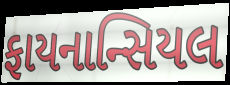
ફાયનાન્સિયલ